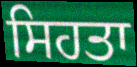
ਸਿਹਤਾ